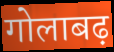
गोलाबढ़